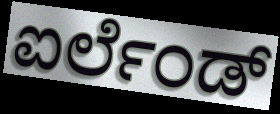
ಐರ್ಲೆಂಡ್